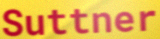
Suttner